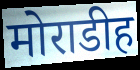
मोराडीह